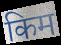
किम